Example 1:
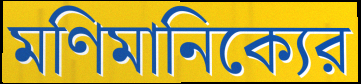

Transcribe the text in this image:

মণিমানিক্যের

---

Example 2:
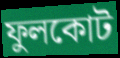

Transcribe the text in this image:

ফুলকোট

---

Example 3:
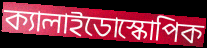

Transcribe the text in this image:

ক্যালাইডোস্কোপিক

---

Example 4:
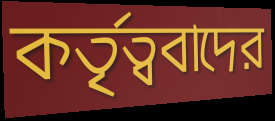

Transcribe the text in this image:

কর্তৃত্ববাদের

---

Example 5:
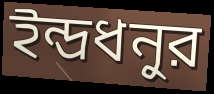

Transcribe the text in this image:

ইন্দ্রধনুর